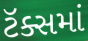
ટૅક્સમાં